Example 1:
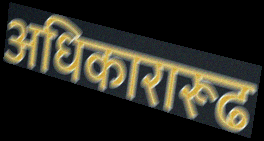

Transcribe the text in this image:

अधिकारारूढ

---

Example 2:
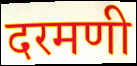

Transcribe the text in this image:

दरमणी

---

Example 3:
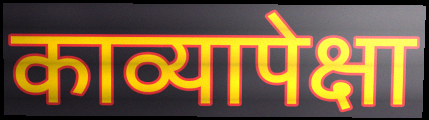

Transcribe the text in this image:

काव्यापेक्षा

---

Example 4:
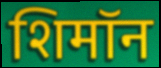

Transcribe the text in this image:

शिमॉन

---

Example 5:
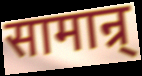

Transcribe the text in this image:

सामान्र्